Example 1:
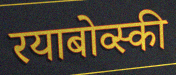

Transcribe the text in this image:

रयाबोव्स्की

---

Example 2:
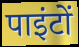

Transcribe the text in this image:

पाइंटों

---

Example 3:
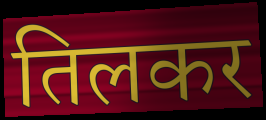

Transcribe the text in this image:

तिलकर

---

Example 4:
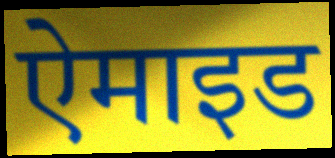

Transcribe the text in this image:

ऐमाइड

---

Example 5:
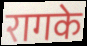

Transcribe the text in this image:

रागके